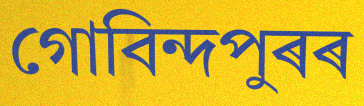
গোবিন্দপুৰৰ